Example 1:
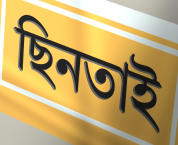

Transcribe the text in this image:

ছিনতাই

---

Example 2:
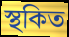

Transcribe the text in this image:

স্থকিত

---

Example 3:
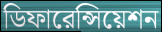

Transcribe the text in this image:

ডিফারেন্সিয়েশন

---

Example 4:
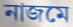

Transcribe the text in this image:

নাজমে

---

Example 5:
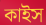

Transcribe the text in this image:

কাইস